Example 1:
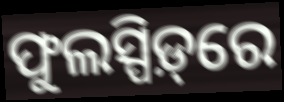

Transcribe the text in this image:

ଫୁଲସ୍ପିଡ଼୍‌ରେ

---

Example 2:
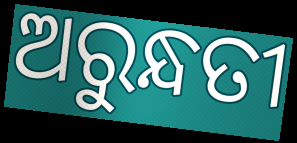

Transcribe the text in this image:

ଅରୁନ୍ଧତୀ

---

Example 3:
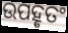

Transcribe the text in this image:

ଉପହୃତଂ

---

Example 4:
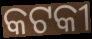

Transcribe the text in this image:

କଟକୀ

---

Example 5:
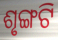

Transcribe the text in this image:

ଶୃଙ୍ଗଟି